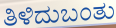
ತಿಳಿದುಬಂತು